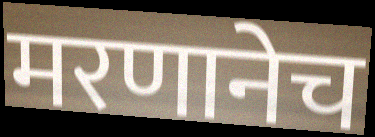
मरणानेच